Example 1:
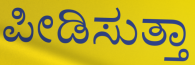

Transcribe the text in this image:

ಪೀಡಿಸುತ್ತಾ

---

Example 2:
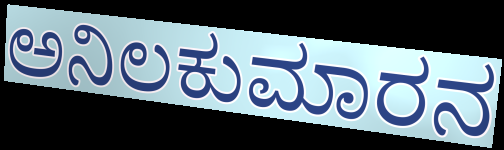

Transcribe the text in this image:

ಅನಿಲಕುಮಾರನ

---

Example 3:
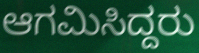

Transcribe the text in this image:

ಆಗಮಿಸಿದ್ದರು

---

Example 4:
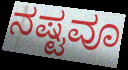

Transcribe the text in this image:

ನಷ್ಟವೂ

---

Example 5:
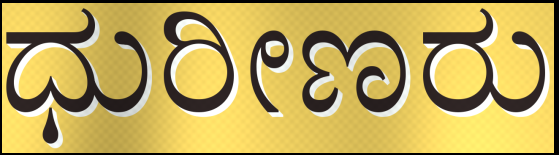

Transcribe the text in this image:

ಧುರೀಣರು